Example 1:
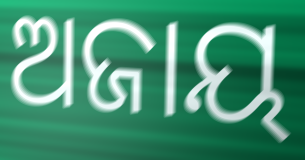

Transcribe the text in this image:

ଅଜାୟ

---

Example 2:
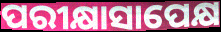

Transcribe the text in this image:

ପରୀକ୍ଷାସାପେକ୍ଷ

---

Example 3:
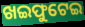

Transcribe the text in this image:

ଖଇଫୁଟେଇ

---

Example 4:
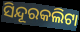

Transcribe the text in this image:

ସିନ୍ଦୂରକଲିଟା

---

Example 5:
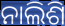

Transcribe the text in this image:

ନାଲିଶି